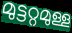
മുട്ടറ്റമുള്ള